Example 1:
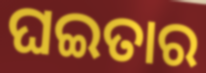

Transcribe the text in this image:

ଘଇତାର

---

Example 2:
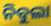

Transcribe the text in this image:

ନିବୁଲା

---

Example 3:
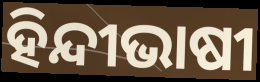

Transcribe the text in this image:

ହିନ୍ଦୀଭାଷୀ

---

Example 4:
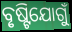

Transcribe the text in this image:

ବୃଷ୍ଟିଯୋଗୁଁ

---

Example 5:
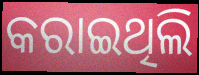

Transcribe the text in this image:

କରାଇଥିଲି